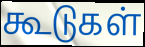
கூடுகள்